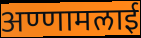
अण्णामलाई